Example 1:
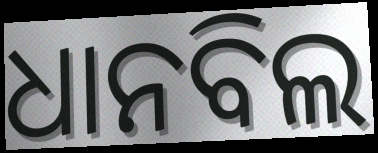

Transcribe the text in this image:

ଧାନବିଲ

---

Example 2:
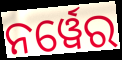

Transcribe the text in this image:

ନର୍ୱେର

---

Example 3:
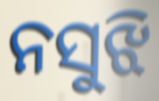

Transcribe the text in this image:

ନସୁଝି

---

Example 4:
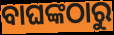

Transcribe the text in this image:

ବାଘଙ୍କଠାରୁ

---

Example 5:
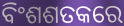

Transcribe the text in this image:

ବିଂଶଶତକରେ